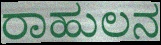
ರಾಹುಲನ